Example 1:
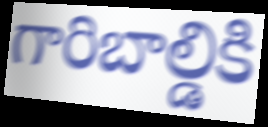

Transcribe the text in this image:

గారిబాల్డికి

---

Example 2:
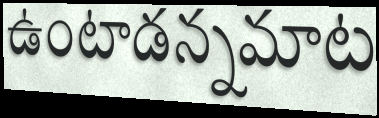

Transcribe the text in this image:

ఉంటాడన్నమాట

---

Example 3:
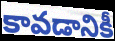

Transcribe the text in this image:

కావడానికీ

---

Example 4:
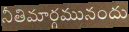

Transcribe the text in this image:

నీతిమార్గమునందు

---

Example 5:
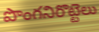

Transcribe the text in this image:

పొంగనిరొట్టెలు